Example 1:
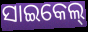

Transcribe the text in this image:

ସାଇକେଲ୍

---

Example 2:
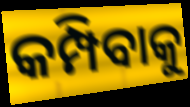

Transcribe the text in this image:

କମ୍ପିବାକୁ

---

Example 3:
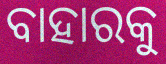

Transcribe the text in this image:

ବାହାରକୁ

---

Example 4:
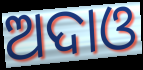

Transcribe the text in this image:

ଅଦାଓ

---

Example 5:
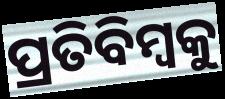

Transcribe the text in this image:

ପ୍ରତିବିମ୍ବକୁ